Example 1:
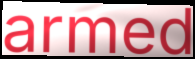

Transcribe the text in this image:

armed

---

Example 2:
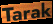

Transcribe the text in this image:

Tarak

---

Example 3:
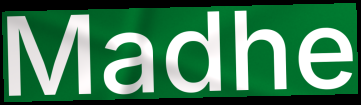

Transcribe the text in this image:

Madhe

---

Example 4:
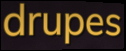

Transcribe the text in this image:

drupes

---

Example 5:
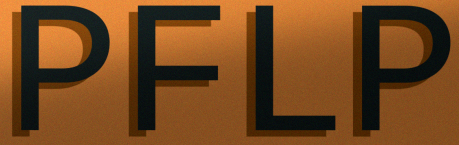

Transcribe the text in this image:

PFLP